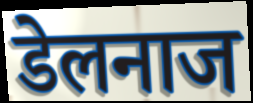
डेलनाज